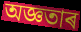
অজ্ঞতাৰ